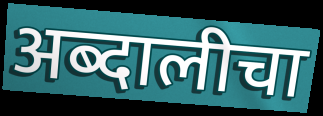
अब्दालीचा